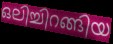
ഒലിച്ചിറങ്ങിയ